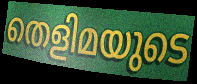
തെളിമയുടെ